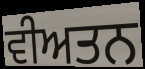
ਵੀਅਤਨ